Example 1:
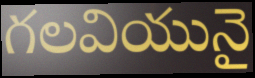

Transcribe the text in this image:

గలవియునై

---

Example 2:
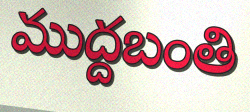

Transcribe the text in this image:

ముద్దబంతి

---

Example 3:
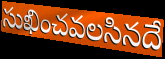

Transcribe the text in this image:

సుఖించవలసినదే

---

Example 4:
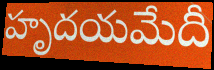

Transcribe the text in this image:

హృదయమేదీ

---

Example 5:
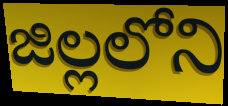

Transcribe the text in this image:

జిల్లలోని